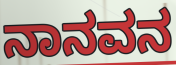
ನಾನವನ